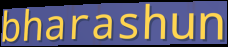
bharashun